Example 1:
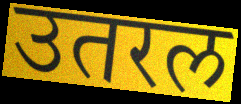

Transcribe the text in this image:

उतरल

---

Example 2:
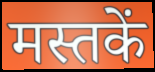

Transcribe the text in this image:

मस्तकें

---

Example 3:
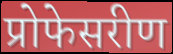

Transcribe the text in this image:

प्रोफेसरीण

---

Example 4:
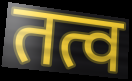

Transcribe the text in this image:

तत्व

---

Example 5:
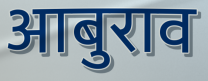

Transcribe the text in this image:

आबुराव